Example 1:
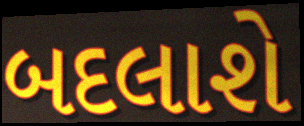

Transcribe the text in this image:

બદલાશે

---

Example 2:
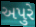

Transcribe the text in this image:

અપુરે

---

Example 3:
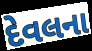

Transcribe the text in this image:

દેવલના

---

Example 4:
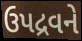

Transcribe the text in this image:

ઉપદ્રવને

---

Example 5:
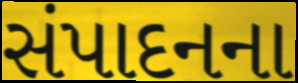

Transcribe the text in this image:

સંપાદનના